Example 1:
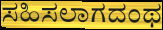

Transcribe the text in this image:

ಸಹಿಸಲಾಗದಂಥ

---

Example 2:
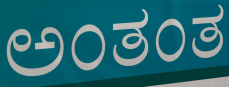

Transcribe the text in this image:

ಅಂತಂತ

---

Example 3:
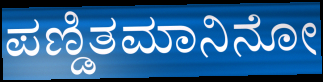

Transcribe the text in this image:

ಪಣ್ಡಿತಮಾನಿನೋ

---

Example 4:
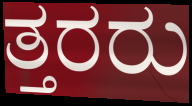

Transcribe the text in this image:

ತ್ತರರು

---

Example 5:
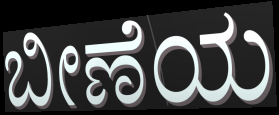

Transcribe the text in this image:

ಬೀಣೆಯ